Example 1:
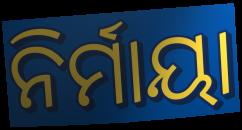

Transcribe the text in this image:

ନିର୍ମାୟା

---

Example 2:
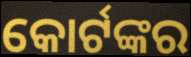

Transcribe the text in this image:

କୋର୍ଟଙ୍କର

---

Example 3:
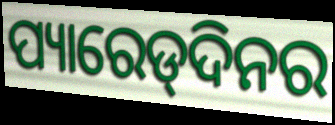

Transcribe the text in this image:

ପ୍ୟାରେଡ୍‌ଦିନର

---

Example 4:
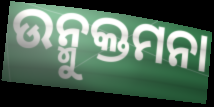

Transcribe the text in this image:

ଉନ୍ମୁକ୍ତମନା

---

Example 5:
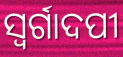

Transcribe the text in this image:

ସ୍ବର୍ଗାଦପୀ